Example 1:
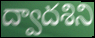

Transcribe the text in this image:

ద్వాదశిని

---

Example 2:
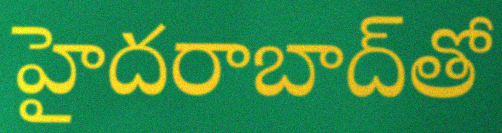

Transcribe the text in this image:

హైదరాబాద్‌తో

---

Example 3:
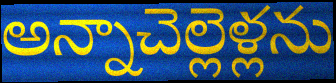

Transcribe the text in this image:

అన్నాచెల్లెళ్లను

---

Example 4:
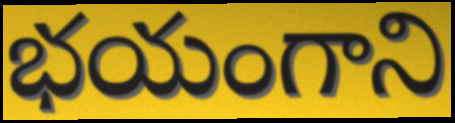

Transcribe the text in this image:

భయంగాని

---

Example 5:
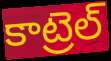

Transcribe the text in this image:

కాట్రెల్